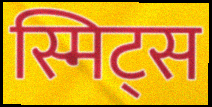
स्मिट्स